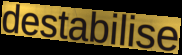
destabilise